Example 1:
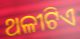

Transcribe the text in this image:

ଥଳୀଟିଏ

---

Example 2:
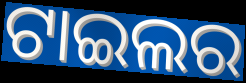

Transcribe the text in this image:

ଟାଇଲର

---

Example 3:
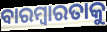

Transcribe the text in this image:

ବାରମ୍ବାରତାକୁ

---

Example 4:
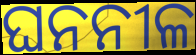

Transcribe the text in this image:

ଘନନୀଳ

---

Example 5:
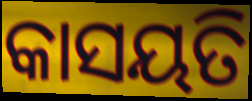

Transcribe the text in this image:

କାସୟତି